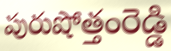
పురుషోత్తంరెడ్డి